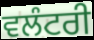
ਵਲੰਟਰੀ